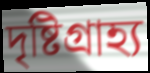
দৃষ্টিগ্রাহ্য